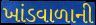
ખાંડવાળાની